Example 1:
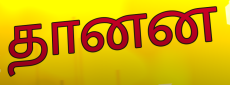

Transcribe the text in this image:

தானன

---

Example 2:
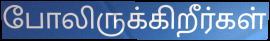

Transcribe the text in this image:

போலிருக்கிறீர்கள்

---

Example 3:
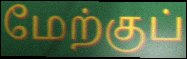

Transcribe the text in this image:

மேற்குப்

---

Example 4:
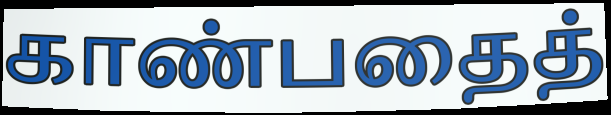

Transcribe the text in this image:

காண்பதைத்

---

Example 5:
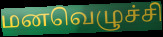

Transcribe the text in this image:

மனவெழுச்சி